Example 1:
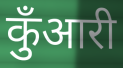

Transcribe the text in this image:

कुँआरी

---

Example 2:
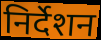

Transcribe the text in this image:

निर्देशन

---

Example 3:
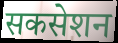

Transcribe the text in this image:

सकसेशन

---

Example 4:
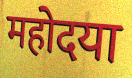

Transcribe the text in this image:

महोदया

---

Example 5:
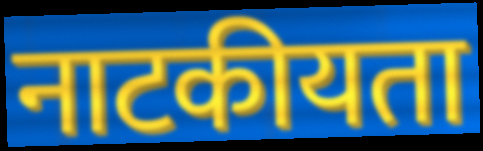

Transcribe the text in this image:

नाटकीयता